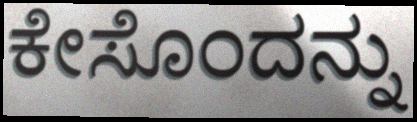
ಕೇಸೊಂದನ್ನು